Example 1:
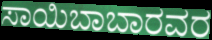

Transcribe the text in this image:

ಸಾಯಿಬಾಬಾರವರ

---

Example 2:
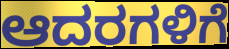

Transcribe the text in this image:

ಆದರಗಳಿಗೆ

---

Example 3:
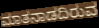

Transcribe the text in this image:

ಮಾತನಾಡದಿರುವ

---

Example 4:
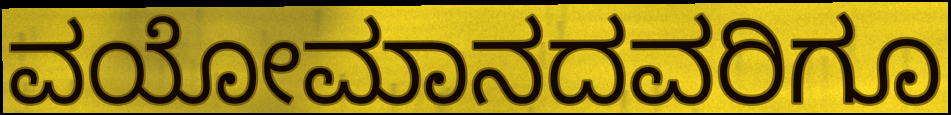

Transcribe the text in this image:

ವಯೋಮಾನದವರಿಗೂ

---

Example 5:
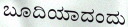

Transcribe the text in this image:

ಬೂದಿಯಾದಂದು